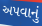
અપવાનું